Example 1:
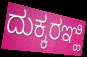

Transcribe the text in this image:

ದುಕ್ಕರಞ್ಹಿ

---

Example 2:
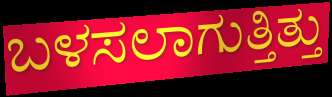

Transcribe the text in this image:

ಬಳಸಲಾಗುತ್ತಿತ್ತು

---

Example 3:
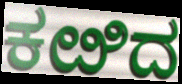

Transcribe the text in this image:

ಕೞಿದ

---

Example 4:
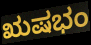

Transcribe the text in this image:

ಋಷಭಂ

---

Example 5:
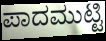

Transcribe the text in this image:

ಪಾದಮುಟ್ಟಿ